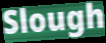
Slough